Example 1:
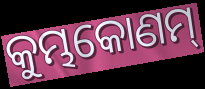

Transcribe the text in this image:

କୁମ୍ଭକୋଣମ୍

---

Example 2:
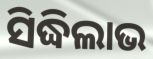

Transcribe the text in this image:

ସିଦ୍ଧିଲାଭ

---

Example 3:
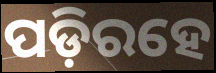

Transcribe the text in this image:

ପଡ଼ିରହେ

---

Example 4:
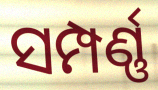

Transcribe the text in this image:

ସମ୍ପର୍ଣ୍ଣ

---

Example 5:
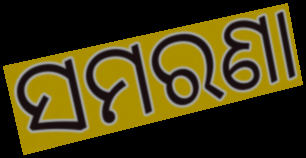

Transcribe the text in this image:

ସମରଣା